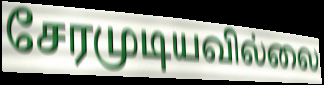
சேரமுடியவில்லை